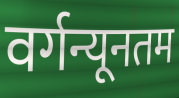
वर्गन्यूनतम